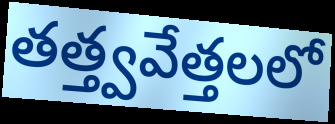
తత్త్వవేత్తలలో